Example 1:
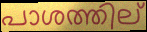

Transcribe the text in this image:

പാശത്തില്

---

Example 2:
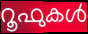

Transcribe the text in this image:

റൂഫുകൾ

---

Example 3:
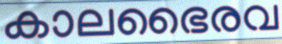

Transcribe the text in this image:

കാലഭൈരവ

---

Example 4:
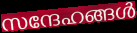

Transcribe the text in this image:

സന്ദേഹങ്ങൾ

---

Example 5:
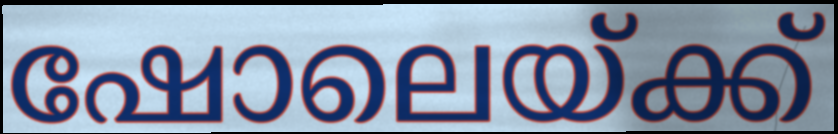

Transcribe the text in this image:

ഷോലെയ്ക്ക്